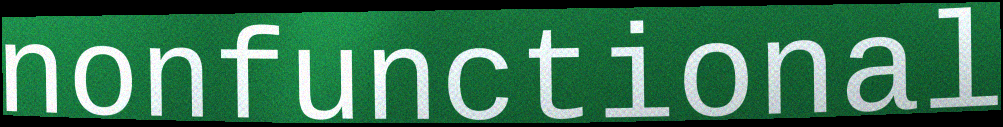
nonfunctional